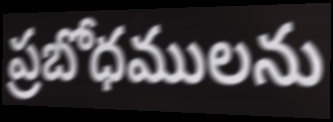
ప్రబోధములను